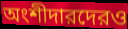
অংশীদারদেরও